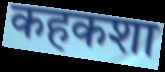
कहकशा